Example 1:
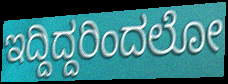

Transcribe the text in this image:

ಇದ್ದಿದ್ದರಿಂದಲೋ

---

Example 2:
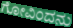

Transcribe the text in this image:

ಗೋವಿಂದನು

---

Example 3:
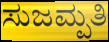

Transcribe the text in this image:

ಸುಜಮ್ಪತಿ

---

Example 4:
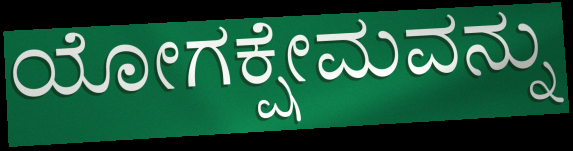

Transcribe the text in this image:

ಯೋಗಕ್ಷೇಮವನ್ನು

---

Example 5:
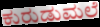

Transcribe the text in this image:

ಕುರುಡುಮಲೆ